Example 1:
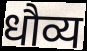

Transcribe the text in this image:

धौव्य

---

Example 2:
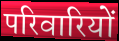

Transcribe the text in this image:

परिवारियों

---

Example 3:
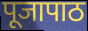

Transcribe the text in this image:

पूजापाठ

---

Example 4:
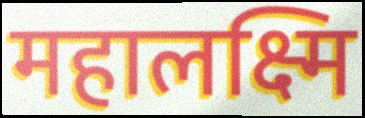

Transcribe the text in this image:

महालक्ष्मि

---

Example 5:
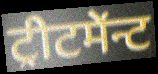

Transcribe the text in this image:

ट्रीटमेंन्ट